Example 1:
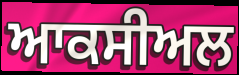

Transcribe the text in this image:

ਆਕਸੀਅਲ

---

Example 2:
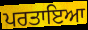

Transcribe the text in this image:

ਪਰਤਾਇਆ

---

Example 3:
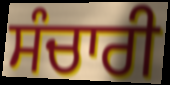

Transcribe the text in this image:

ਸੰਚਾਰੀ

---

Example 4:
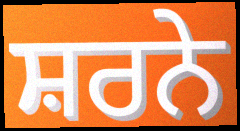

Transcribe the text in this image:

ਸ਼ਰਨੇ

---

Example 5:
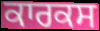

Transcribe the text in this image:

ਕਾਰਕਸ